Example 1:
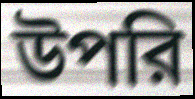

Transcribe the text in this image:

উপরি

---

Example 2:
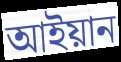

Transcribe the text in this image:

আইয়ান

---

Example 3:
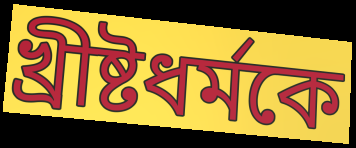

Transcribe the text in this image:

খ্রীষ্টধর্মকে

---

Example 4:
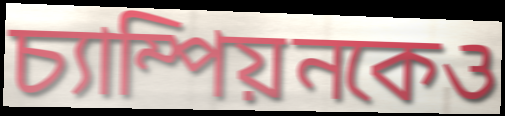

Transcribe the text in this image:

চ্যাম্পিয়নকেও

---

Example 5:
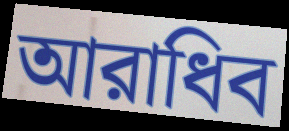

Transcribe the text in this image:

আরাধিব